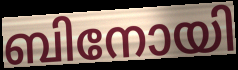
ബിനോയി